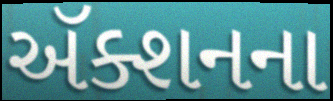
ઍક્શનના